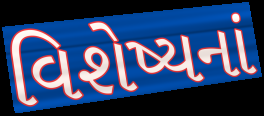
વિશેષ્યનાં